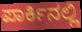
ಪಾರ್ಕಿನಲ್ಲಿ